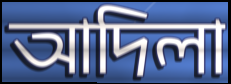
আদিলা